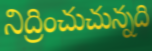
నిద్రించుచున్నది